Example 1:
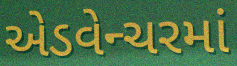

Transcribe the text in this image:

એડવેન્ચરમાં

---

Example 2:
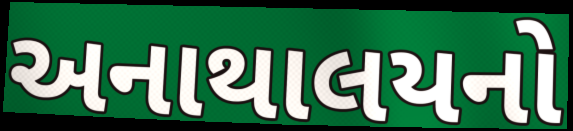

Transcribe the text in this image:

અનાથાલયનો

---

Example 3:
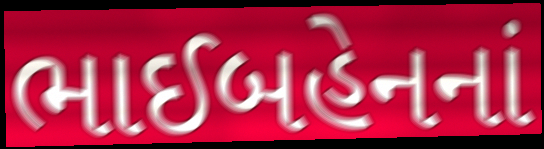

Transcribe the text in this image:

ભાઈબહેનનાં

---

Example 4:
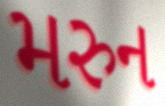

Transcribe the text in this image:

મરુન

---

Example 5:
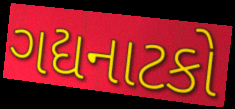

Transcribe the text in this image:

ગદ્યનાટકો